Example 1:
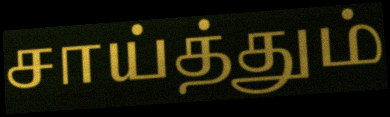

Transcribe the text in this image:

சாய்த்தும்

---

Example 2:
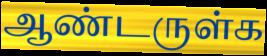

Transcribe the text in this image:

ஆண்டருள்க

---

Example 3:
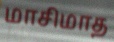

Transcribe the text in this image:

மாசிமாத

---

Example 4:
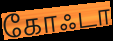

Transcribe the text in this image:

கோஃடா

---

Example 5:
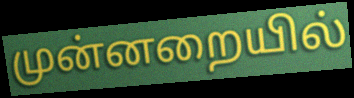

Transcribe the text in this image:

முன்னறையில்